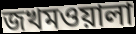
জখমওয়ালা